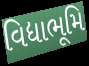
વિદ્યાભૂમિ